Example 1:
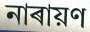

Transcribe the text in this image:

নাৰায়ণ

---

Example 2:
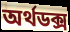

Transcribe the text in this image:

অৰ্থডক্স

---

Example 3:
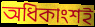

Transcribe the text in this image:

অধিকাংশই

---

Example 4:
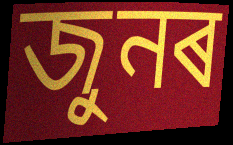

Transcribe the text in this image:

জুনৰ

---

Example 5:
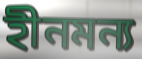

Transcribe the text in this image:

হীনমন্য